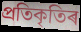
প্ৰতিকৃতিৰ